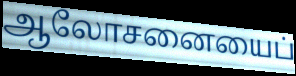
ஆலோசனையைப்